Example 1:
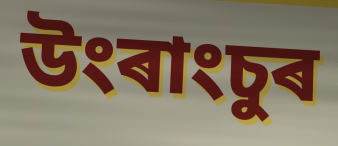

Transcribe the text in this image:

উংৰাংচুৰ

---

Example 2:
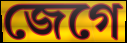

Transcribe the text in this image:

জেগে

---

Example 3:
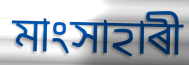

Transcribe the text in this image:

মাংসাহাৰী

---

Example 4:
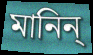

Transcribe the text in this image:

মানিন্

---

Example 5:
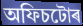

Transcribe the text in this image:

অফিচটোৰ